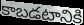
కాబడటానికి